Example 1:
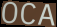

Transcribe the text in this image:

OCA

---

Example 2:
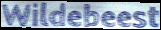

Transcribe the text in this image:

Wildebeest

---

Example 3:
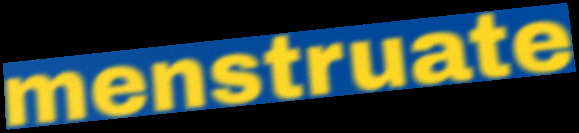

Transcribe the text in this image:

menstruate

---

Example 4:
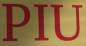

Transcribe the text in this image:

PIU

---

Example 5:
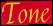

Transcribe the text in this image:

Tone